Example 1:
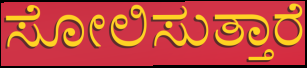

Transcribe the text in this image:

ಸೋಲಿಸುತ್ತಾರೆ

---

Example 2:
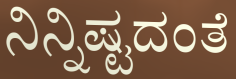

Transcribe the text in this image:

ನಿನ್ನಿಷ್ಟದಂತೆ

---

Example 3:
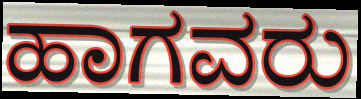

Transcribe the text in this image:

ಹಾಗವರು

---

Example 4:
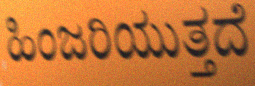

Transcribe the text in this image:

ಹಿಂಜರಿಯುತ್ತದೆ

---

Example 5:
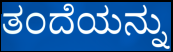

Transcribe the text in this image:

ತಂದೆಯನ್ನು